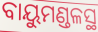
ବାୟୁମଣ୍ଡଳସ୍ଥ